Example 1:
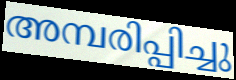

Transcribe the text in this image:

അമ്പരിപ്പിച്ചു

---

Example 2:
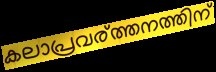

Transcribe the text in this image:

കലാപ്രവര്ത്തനത്തിന്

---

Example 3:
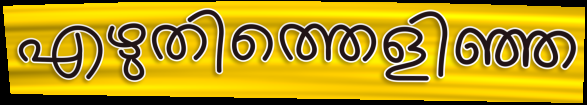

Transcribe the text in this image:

എഴുതിത്തെളിഞ്ഞ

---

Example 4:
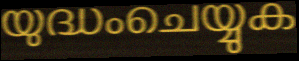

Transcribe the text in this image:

യുദ്ധംചെയ്യുക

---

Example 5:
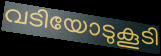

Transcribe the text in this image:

വടിയോടുകൂടി